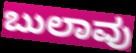
ಬುಲಾವು